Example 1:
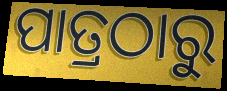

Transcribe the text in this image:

ପାତ୍ରଠାରୁ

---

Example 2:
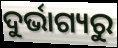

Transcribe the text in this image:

ଦୁର୍ଭାଗ୍ୟରୁ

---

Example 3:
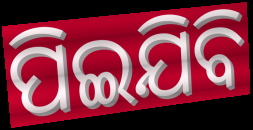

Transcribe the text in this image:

ପିଇଯିବି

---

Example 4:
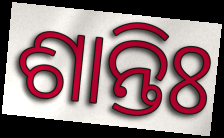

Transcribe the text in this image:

ଶାନ୍ତିଃ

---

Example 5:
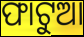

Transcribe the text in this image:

ଫାଟୁଆ